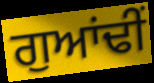
ਗੁਆਂਢੀਂ